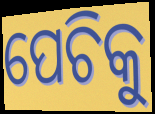
ପେଚିକୁ